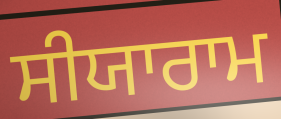
ਸੀਯਾਰਾਮ